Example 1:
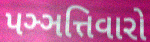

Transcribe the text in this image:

પઞ્ઞત્તિવારો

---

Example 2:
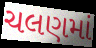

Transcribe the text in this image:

ચલણમાં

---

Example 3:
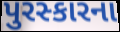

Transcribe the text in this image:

પુરસ્કારના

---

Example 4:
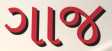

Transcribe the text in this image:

ગાજ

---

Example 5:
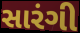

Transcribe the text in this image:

સારંગી